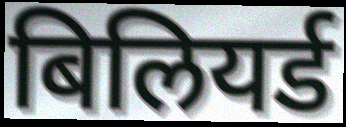
बिलियर्ड